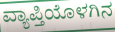
ವ್ಯಾಪ್ತಿಯೊಳಗಿನ